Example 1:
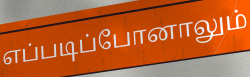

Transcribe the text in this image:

எப்படிப்போனாலும்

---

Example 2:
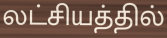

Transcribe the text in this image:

லட்சியத்தில்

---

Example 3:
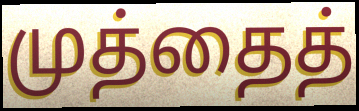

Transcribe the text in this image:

முத்தைத்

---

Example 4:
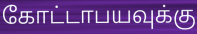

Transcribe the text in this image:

கோட்டாபயவுக்கு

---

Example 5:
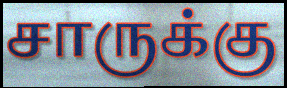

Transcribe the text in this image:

சாருக்கு